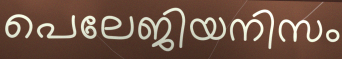
പെലേജിയനിസം